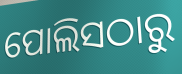
ପୋଲିସଠାରୁ